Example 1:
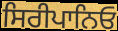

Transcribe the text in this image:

ਸਿਰੀਪਾਨਿਓ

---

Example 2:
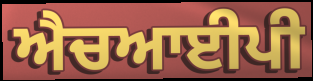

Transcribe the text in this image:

ਐਚਆਈਪੀ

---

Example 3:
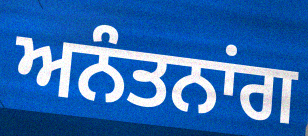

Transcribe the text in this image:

ਅਨੰਤਨਾਂਗ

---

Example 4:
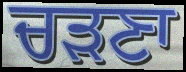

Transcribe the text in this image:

ਚੜਣਾ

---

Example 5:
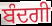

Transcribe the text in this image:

ਬੰਦਗੀ